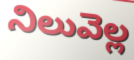
నిలువెల్ల